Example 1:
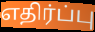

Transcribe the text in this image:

எதிர்ப்பு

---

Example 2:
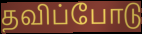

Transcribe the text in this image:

தவிப்போடு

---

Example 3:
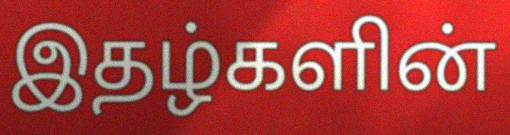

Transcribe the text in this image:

இதழ்களின்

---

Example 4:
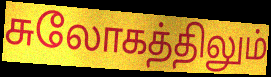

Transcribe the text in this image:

சுலோகத்திலும்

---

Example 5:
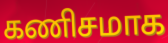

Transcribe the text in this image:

கணிசமாக